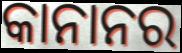
କାନାନର